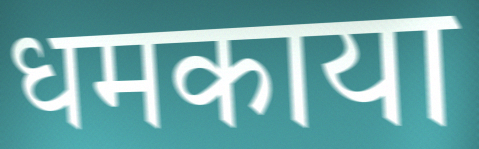
धमकाया